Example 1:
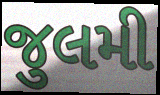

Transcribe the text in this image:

જુલમી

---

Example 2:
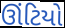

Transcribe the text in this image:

ઊંટિયો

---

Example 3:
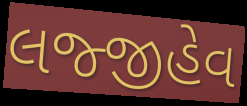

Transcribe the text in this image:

લજ્જીહેવ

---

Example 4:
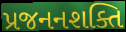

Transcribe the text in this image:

પ્રજનનશક્તિ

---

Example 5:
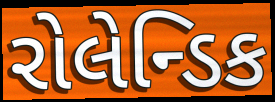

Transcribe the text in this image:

રોલેન્ડિક